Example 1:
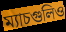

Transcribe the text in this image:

ম্যাচগুলিও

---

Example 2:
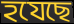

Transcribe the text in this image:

হযেছে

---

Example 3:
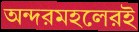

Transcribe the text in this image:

অন্দরমহলেরই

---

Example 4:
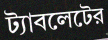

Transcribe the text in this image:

ট্যাবলেটের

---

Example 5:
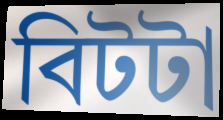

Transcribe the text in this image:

বিটটা